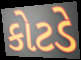
કોટડે